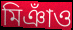
মিঞাঁও